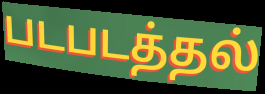
படபடத்தல்